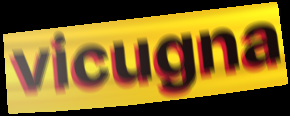
vicugna